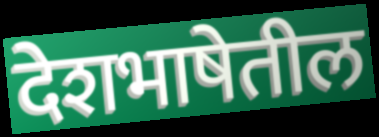
देशभाषेतील